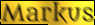
Markus